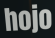
hojo